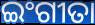
ଇଂଗୀତା